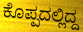
ಕೊಪ್ಪದಲ್ಲಿದ್ದ